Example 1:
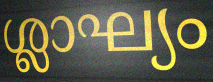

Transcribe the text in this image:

ശ്ലാഘ്യം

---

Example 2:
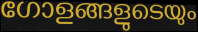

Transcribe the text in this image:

ഗോളങ്ങളുടെയും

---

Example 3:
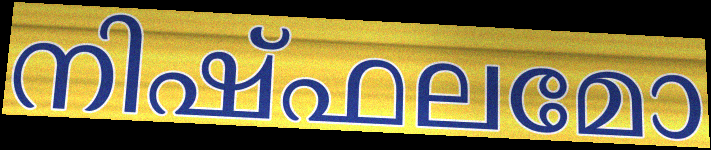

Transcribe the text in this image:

നിഷ്ഫലമോ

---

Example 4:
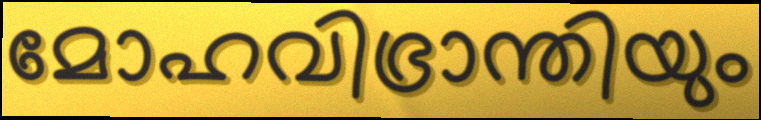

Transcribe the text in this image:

മോഹവിഭ്രാന്തിയും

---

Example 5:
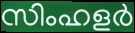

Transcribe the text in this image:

സിംഹളർ